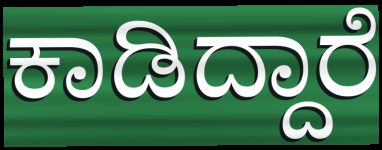
ಕಾಡಿದ್ದಾರೆ